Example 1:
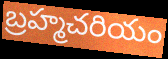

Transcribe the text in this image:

బ్రహ్మచరియం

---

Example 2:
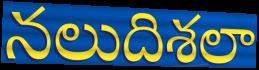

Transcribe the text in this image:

నలుదిశలా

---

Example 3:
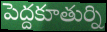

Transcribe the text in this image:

పెద్దకూతుర్ని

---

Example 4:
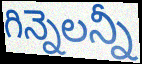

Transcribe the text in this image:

గిన్నెలన్నీ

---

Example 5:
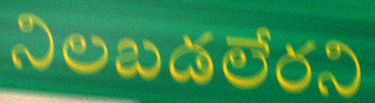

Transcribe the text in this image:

నిలబడలేరని